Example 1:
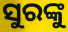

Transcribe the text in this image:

ସୁରଙ୍କୁ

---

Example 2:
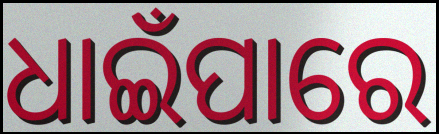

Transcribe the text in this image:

ଧାଇଁପାରେ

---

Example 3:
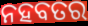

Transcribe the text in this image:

ନହବତର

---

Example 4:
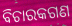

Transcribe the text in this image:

ବିଚାରକଗଣ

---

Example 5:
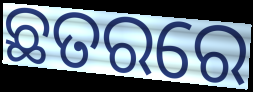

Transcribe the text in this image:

ଛତରରେ